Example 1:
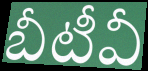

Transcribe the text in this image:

బీటీవీ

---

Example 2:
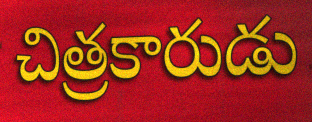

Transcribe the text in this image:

చిత్రకారుడు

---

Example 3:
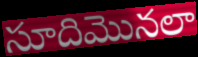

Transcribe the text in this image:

సూదిమొనలా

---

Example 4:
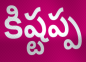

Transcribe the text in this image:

కిష్టప్ప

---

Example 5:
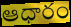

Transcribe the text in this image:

ఆధారం